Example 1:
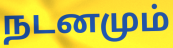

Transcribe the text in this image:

நடனமும்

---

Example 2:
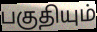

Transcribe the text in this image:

பகுதியும்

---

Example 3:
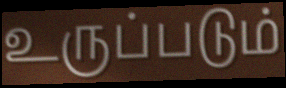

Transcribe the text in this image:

உருப்படும்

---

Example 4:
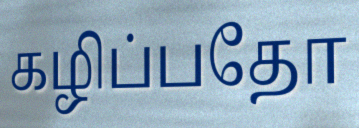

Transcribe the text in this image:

கழிப்பதோ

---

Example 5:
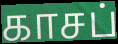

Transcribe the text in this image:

காசப்